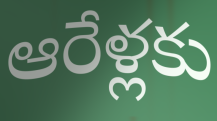
ఆరేళ్లకు